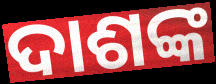
ଦାଶଙ୍କ